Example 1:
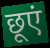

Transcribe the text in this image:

छूएं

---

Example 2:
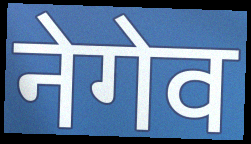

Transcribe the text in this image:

नेगेव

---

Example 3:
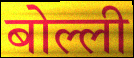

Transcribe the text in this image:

बोल्ली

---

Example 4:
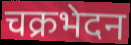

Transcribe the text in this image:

चक्रभेदन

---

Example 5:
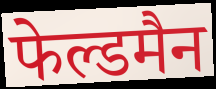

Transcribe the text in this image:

फेल्डमैन